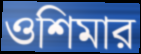
ওশিমার